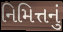
નિમિત્તનું